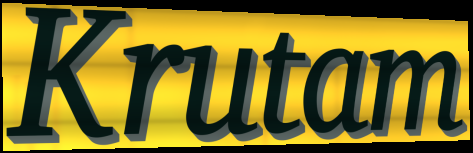
Krutam